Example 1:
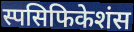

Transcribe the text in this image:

स्पसिफिकेशंस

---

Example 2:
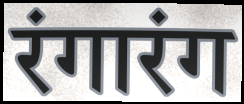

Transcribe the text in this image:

रंगारंग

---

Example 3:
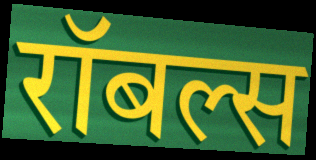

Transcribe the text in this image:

रॉबल्स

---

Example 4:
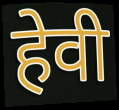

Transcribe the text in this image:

हेवी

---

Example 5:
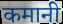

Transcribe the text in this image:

कमानी